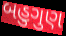
બહુગુણ